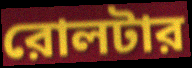
রোলটার